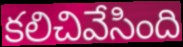
కలిచివేసింది